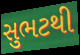
સુભટથી